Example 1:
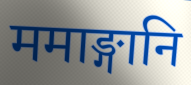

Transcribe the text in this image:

ममाङ्गानि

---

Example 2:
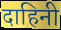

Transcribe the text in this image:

दाहिनी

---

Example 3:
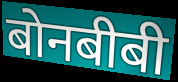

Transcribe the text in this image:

बोनबीबी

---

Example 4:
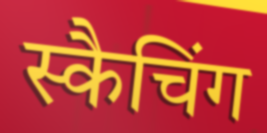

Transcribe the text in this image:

स्कैचिंग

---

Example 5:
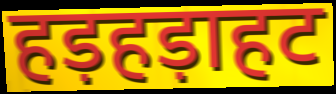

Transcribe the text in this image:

हड़हड़ाहट